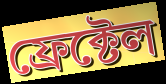
ফ্ৰেক্টেল